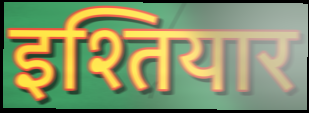
इश्तियार